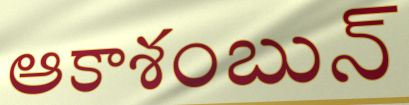
ఆకాశంబున్